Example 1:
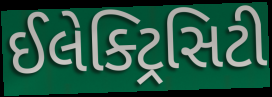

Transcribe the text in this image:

ઈલેક્ટ્રિસિટી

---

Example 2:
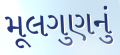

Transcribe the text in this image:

મૂલગુણનું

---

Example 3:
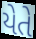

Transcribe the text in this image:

યેતે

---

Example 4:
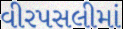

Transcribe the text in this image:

વીરપસલીમાં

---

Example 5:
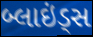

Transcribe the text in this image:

બ્લાઇંડ્સ